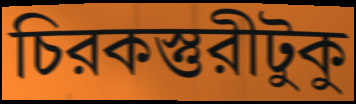
চিরকস্তুরীটুকু